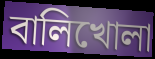
বালিখোলা